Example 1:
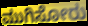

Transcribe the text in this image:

ಮುಗಿಸೋರು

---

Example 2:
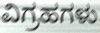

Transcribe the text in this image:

ವಿಗ್ರಹಗಳು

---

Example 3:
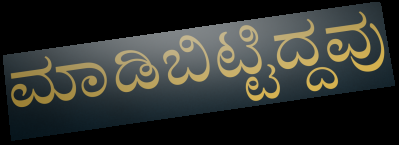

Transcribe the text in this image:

ಮಾಡಿಬಿಟ್ಟಿದ್ದವು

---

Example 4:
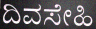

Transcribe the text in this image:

ದಿವಸೇಹಿ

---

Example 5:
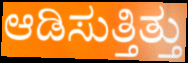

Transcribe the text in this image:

ಆಡಿಸುತ್ತಿತ್ತು